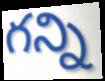
గన్ని